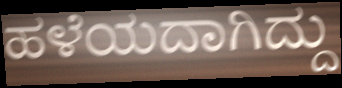
ಹಳೆಯದಾಗಿದ್ದು